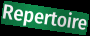
Repertoire